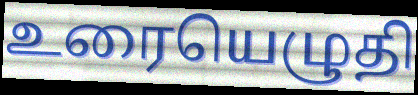
உரையெழுதி